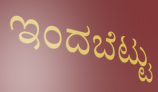
ಇಂದಬೆಟ್ಟು